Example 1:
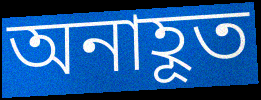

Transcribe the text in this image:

অনাহূত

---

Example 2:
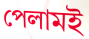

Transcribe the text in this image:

পেলামই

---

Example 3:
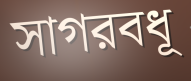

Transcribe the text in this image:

সাগরবধূ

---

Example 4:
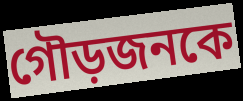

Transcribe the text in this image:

গৌড়জনকে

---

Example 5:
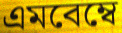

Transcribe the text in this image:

এমবেম্বে